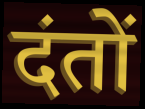
दंतों